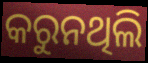
କରୁନଥିଲି